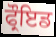
ਫ੍ਰੌਇਡ